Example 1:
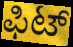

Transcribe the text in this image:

ಫಿಟ್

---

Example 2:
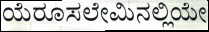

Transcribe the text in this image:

ಯೆರೂಸಲೇಮಿನಲ್ಲಿಯೇ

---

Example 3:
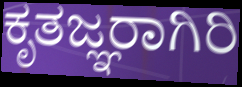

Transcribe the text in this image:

ಕೃತಜ್ಞರಾಗಿರಿ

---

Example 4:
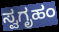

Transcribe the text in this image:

ಸ್ವಗೃಹಂ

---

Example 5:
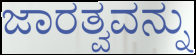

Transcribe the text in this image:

ಜಾರತ್ವವನ್ನು